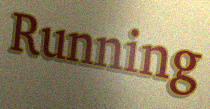
Running